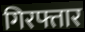
गिरफ्तार